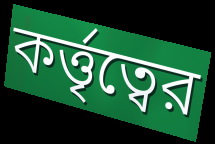
কর্ত্তৃত্বের